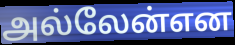
அல்லேன்என